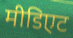
मीडिएट